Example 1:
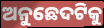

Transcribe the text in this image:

ଅନୁଛେଦଟିକୁ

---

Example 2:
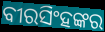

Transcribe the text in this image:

ବୀରସିଂହଙ୍କର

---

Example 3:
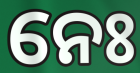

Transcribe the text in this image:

ନେଃ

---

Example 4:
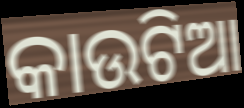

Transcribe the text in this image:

କାଉଟିଆ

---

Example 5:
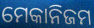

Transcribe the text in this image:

ମେକାନିଜମ